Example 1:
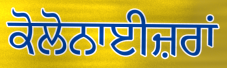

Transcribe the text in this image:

ਕੋਲੋਨਾਈਜ਼ਰਾਂ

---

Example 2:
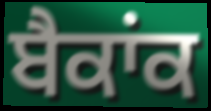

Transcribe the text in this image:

ਬੈਕਾਂਕ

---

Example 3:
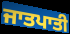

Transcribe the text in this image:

ਜਾਤਪਾਤੀ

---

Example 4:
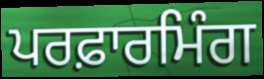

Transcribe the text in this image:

ਪਰਫ਼ਾਰਮਿੰਗ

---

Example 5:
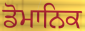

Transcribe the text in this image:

ਡੋਮਾਨਿਕ